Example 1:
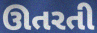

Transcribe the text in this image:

ઊતરતી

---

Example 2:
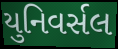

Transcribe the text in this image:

યુનિવર્સલ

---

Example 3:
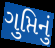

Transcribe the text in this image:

ગુપ્તિનું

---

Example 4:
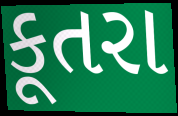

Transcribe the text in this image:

કૂતરા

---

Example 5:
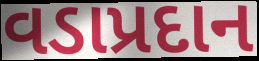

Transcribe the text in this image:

વડાપ્રદાન